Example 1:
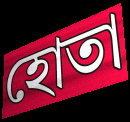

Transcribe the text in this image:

হোতা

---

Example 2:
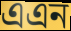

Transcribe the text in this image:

এএন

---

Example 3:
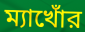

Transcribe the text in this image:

ম্যাখোঁর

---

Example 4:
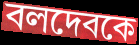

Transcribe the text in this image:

বলদেবকে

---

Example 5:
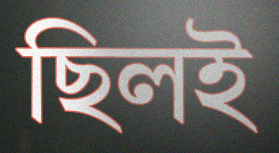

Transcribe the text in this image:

ছিলই